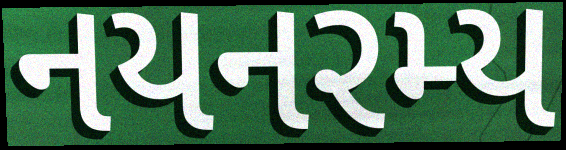
નયનરમ્ય